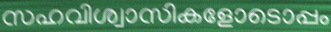
സഹവിശ്വാസികളോടൊപ്പം